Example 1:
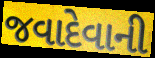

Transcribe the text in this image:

જવાદેવાની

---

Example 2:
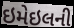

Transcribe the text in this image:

ઇમેઇલની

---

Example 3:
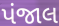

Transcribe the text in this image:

પંજાલ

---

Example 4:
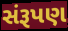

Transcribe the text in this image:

સંરૂપણ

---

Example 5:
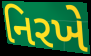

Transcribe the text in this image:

નિરખે